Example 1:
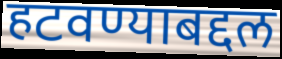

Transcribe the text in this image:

हटवण्याबद्दल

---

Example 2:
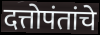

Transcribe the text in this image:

दत्तोपंतांचे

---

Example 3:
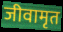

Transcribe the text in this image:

जीवामृत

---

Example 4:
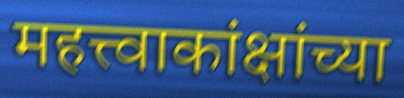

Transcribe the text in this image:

महत्त्वाकांक्षांच्या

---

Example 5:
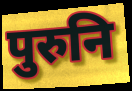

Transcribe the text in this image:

पुरुनि